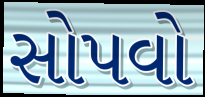
સોપવો